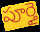
పూర్తై